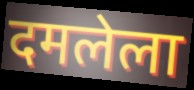
दमलेला